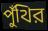
পুঁথির